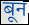
बून